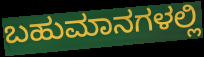
ಬಹುಮಾನಗಳಲ್ಲಿ